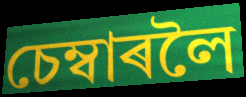
চেম্বাৰলৈ